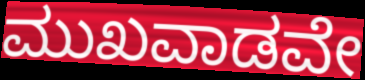
ಮುಖವಾಡವೇ